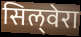
सिल्वेरा